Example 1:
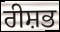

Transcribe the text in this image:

ਰੀਸ਼ਭ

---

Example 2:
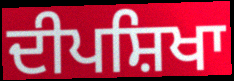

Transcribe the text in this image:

ਦੀਪਸ਼ਿਖਾ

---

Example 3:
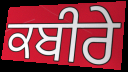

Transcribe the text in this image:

ਕਬੀਰੇ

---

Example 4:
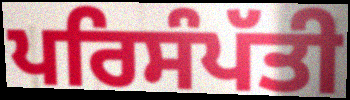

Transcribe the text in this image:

ਪਰਿਸੰਪੱਤੀ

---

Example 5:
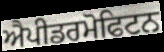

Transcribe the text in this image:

ਐਪੀਡਰਮੋਫਿਟਨ